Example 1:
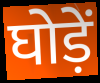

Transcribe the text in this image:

घोड़ें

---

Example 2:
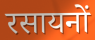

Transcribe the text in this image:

रसायनों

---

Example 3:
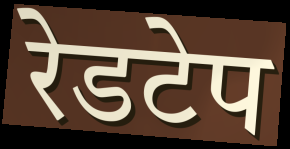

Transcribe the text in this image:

रेडटेप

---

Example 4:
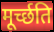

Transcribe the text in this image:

मूर्च्छति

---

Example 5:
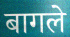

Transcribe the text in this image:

बागले